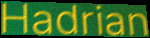
Hadrian